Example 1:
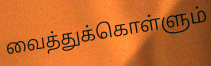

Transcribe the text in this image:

வைத்துக்கொள்ளும்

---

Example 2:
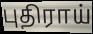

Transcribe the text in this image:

புதிராய்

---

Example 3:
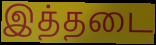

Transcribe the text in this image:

இத்தடை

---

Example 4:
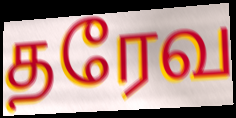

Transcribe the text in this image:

தரேவ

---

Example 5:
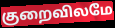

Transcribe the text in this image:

குறைவிலமே